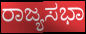
ರಾಜ್ಯಸಭಾ